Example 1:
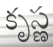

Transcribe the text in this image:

కృస్ణ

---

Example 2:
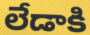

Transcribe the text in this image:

లేడాకి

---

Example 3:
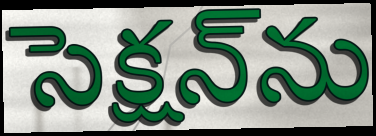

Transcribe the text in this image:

సెక్షన్‌ను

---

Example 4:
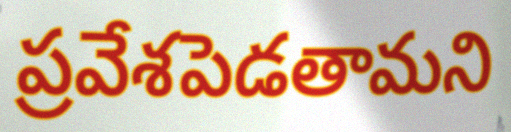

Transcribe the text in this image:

ప్రవేశపెడతామని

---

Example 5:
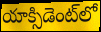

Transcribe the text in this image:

యాక్సిడెంట్‌లో